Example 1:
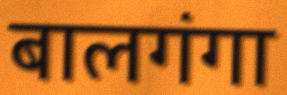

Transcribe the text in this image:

बालगंगा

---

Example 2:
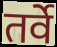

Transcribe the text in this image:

तर्वे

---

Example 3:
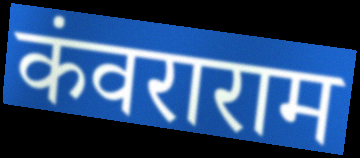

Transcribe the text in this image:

कंवराराम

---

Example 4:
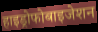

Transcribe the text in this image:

हाइड्रोफोबाइजेशन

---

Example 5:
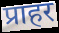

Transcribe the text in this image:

प्राहर